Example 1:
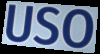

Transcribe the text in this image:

USO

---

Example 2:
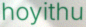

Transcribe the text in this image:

hoyithu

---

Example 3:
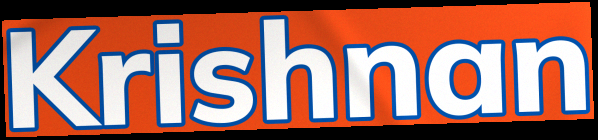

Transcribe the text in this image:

Krishnan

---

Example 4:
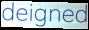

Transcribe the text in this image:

deigned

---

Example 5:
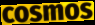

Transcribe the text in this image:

cosmos